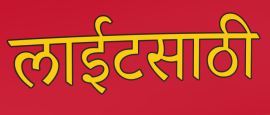
लाईटसाठी